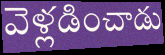
వెళ్లడించాడు